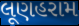
લૂણહરામ